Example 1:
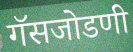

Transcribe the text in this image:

गॅसजोडणी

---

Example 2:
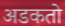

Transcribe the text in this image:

अडकतो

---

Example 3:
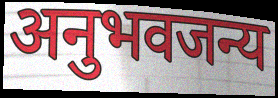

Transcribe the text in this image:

अनुभवजन्य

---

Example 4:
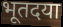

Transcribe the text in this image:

भूतदया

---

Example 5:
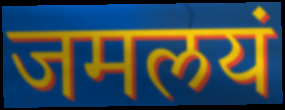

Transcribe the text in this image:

जमलयं